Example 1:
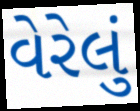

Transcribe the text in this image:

વેરેલું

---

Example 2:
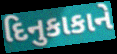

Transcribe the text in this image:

દિનુકાકાને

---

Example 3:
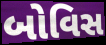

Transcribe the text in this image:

બોવિસ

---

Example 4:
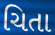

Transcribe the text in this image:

ચિતા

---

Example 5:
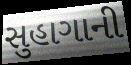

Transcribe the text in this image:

સુહાગાની